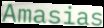
Amasias